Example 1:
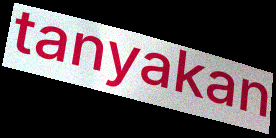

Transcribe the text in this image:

tanyakan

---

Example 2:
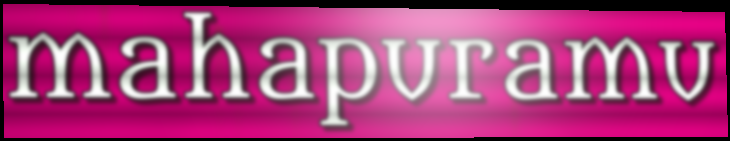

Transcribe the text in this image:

mahapuramu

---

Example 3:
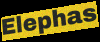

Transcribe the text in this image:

Elephas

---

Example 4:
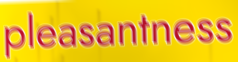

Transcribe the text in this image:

pleasantness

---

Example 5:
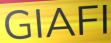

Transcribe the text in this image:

GIAFI